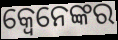
କ୍ବେନେଙ୍କର